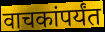
वाचकांपर्यंत